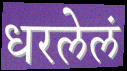
धरलेलं